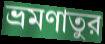
ভ্রমণাতুর